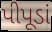
પીપૂડાં